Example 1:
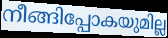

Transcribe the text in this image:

നീങ്ങിപ്പോകയുമില്ല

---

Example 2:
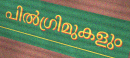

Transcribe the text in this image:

പിൽഗ്രിമുകളും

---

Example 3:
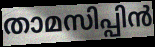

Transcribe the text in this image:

താമസിപ്പിൻ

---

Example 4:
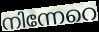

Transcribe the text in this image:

നിന്നേറെ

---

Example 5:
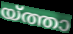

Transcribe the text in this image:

യ്ത്താ